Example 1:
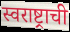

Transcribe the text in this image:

स्वराष्ट्राची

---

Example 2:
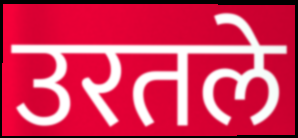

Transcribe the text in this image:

उरतले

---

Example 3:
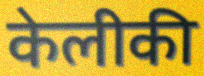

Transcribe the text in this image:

केलीकी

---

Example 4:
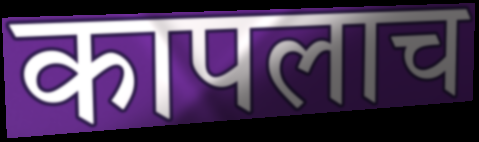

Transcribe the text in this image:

कापलाच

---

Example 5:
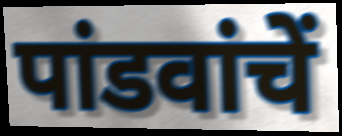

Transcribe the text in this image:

पांडवांचें